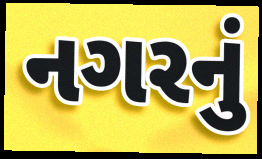
નગરનું